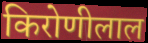
किरोणीलाल